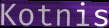
Kotnis